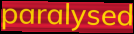
paralysed